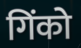
गिंको